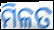
ମିଳତ